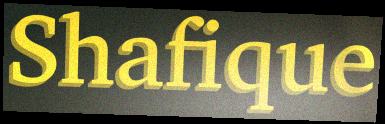
Shafique